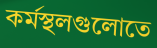
কর্মস্থলগুলোতে